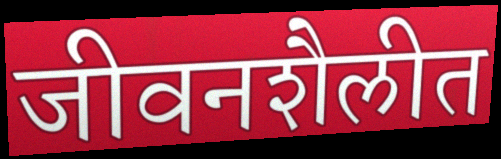
जीवनशैलीत